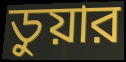
ডুয়ার